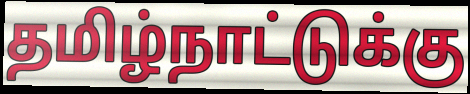
தமிழ்நாட்டுக்கு